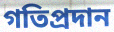
গতিপ্রদান